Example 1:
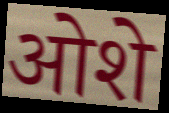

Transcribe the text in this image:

ओशे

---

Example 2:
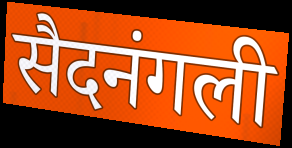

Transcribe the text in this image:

सैदनंगली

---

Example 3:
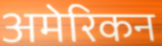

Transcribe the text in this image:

अमेरिकन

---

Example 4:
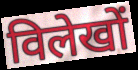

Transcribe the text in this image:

विलेखों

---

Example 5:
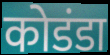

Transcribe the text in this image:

कोडंडा